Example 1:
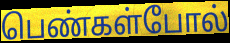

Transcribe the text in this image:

பெண்கள்போல்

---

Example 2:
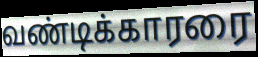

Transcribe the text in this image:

வண்டிக்காரரை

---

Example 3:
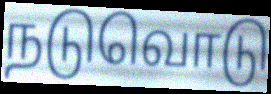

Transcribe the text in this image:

நடுவொடு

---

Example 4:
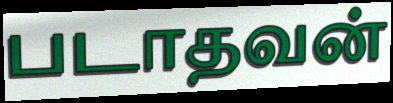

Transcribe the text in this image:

படாதவன்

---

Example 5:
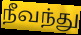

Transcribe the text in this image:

நீவந்து